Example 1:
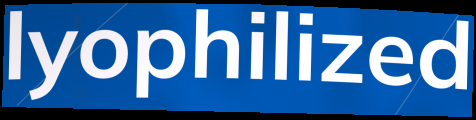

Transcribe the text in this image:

lyophilized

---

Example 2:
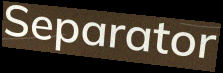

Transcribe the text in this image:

Separator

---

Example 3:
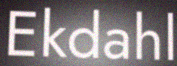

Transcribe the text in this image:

Ekdahl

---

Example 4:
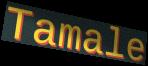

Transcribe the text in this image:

Tamale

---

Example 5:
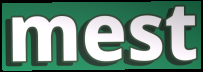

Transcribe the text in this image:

mest